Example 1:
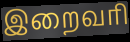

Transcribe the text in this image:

இறைவரி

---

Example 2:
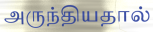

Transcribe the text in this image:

அருந்தியதால்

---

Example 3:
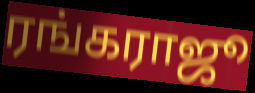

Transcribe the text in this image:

ரங்கராஜூ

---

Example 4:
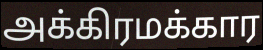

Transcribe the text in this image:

அக்கிரமக்கார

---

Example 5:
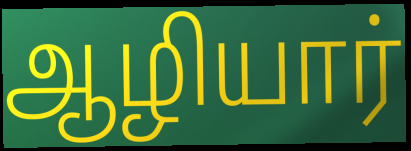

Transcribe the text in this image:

ஆழியார்